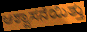
ಆಶ್ವಾಸನೆಯಿತ್ತು